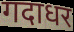
गदाधर